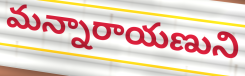
మన్నారాయణుని